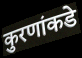
कुरणांकडे